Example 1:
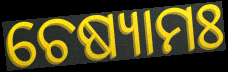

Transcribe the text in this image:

ଚେଷ୍ୟାମଃ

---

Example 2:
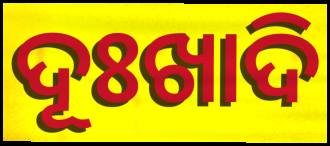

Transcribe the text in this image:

ଦୂଃଖାଦି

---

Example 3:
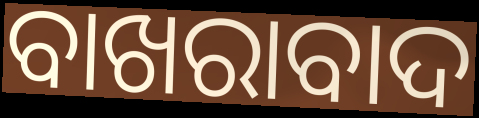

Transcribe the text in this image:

ବାଖରାବାଦ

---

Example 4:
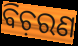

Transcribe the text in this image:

ବିଚ଼ରଣ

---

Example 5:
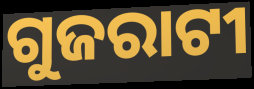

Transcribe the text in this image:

ଗୁଜରାଟୀ